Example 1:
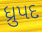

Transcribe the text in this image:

ધ્રુપદ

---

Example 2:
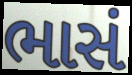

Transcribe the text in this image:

ભાસં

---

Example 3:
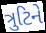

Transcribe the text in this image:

ત્રુટિને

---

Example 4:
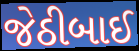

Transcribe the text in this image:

જેઠીબાઈ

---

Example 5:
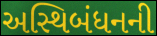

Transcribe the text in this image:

અસ્થિબંધનની